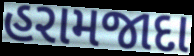
હરામજાદા